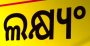
ଲକ୍ଷ୍ୟଂ